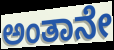
ಅಂತಾನೇ